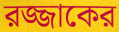
রজ্জাকের